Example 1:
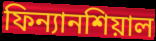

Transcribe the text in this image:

ফিন্যানশিয়াল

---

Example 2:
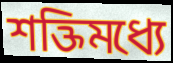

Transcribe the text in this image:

শক্তিমধ্যে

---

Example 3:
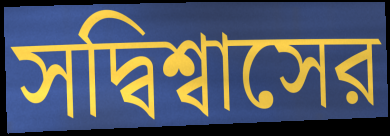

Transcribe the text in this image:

সদ্বিশ্বাসের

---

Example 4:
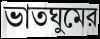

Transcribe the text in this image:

ভাতঘুমের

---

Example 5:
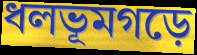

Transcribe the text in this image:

ধলভূমগড়ে